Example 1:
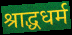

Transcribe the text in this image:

श्राद्धधर्म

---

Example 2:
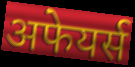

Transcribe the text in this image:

अफेयर्स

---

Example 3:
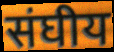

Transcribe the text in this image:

संघीय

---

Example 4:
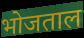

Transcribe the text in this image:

भोजताल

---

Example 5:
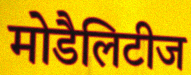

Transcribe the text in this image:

मोडैलिटीज